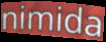
nimida